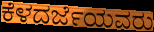
ಕೆಳದರ್ಜೆಯವರು